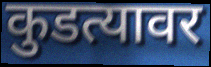
कुडत्यावर